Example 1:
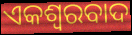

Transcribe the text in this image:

ଏକଶ୍ୱରବାଦ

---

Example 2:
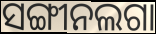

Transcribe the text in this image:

ସଙ୍ଗୀନଲଗା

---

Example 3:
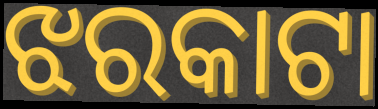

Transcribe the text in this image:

ଝରକାଟା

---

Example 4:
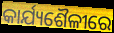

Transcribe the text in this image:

କାର୍ଯ୍ୟଶୈଳୀରେ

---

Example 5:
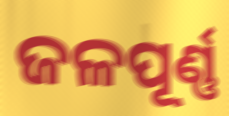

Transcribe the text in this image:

ଜଳପୂର୍ଣ୍ଣ